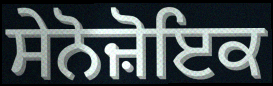
ਸੇਨੋਜ਼ੋਇਕ